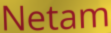
Netam